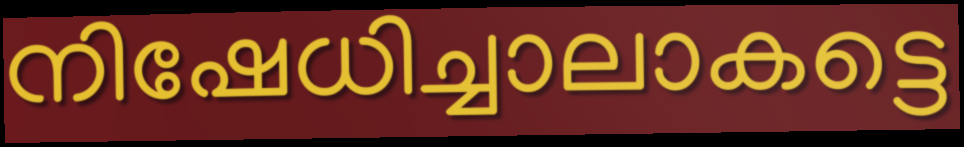
നിഷേധിച്ചാലാകട്ടെ